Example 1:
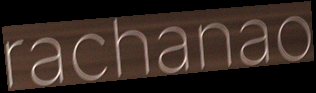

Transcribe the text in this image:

rachanao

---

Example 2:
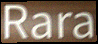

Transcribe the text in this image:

Rara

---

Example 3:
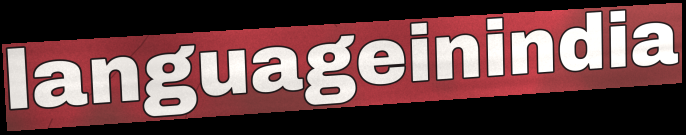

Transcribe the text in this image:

languageinindia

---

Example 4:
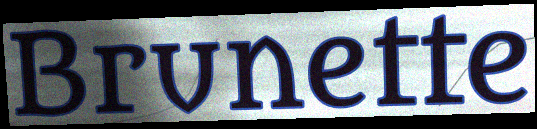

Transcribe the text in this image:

Brunette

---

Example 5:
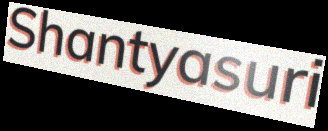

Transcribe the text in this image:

Shantyasuri